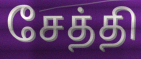
சேத்தி